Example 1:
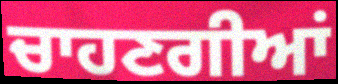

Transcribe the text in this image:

ਚਾਹਣਗੀਆਂ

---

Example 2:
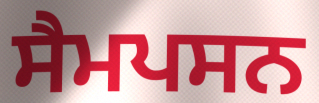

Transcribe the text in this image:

ਸੈਮਪਸਨ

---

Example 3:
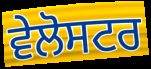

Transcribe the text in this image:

ਵੇਲੋਸਟਰ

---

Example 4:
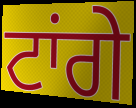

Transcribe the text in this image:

ਟਾਂਗੇ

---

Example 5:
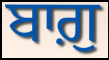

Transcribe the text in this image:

ਬਾਗ਼ੁ